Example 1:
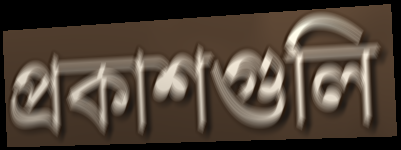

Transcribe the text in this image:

প্রকাশগুলি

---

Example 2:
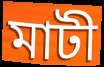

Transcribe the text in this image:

মাটী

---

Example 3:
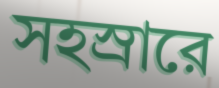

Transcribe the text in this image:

সহস্রারে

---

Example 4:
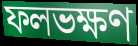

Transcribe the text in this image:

ফলভক্ষণ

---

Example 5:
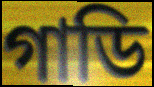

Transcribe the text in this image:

গাডি